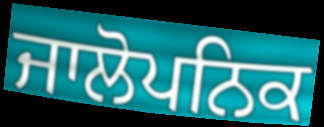
ਜਾਲੋਪਨਿਕ